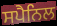
ਸਪੈਨਿਲ